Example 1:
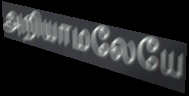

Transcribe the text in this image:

அறியாமலேயே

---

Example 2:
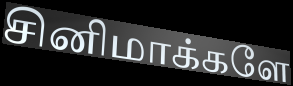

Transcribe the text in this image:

சினிமாக்களே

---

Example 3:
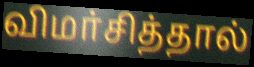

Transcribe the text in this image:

விமர்சித்தால்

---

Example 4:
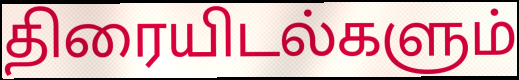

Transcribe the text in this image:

திரையிடல்களும்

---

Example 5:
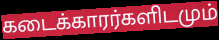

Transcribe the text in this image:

கடைக்காரர்களிடமும்